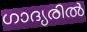
ഗാദ്യരിൽ